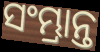
ସଂମ୍ଭ୍ରାନ୍ତ